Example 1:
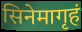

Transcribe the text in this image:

सिनेमागृहं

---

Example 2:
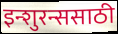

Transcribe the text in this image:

इन्शुरन्ससाठी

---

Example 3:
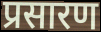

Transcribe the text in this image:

प्रसारण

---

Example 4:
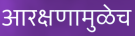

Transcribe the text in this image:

आरक्षणामुळेच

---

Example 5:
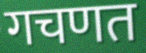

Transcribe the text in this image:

गचणत